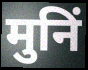
मुनिं